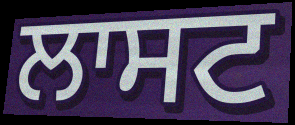
ਲਾਸਟ